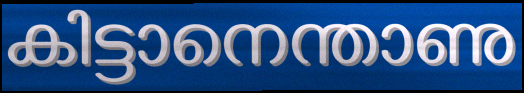
കിട്ടാനെന്താണു